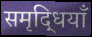
समृद्धियाँ